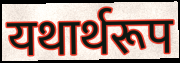
यथार्थरूप